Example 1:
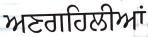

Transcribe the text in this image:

ਅਣਗਹਿਲੀਆਂ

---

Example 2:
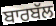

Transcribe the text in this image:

ਬਾਰਬੱਲ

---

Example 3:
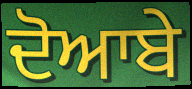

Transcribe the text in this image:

ਦੋਆਬੇ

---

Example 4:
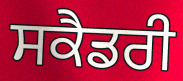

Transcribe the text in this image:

ਸਕੈਡਰੀ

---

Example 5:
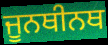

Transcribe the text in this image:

ਜੂਨਥੀਨਥ